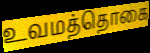
உவமத்தொகை